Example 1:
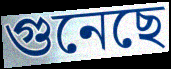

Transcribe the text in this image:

গুনেছে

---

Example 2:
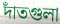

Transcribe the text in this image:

দাঁতগুলা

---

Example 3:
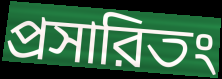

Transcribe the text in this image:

প্রসারিতং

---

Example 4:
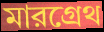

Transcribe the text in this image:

মারগ্রেথ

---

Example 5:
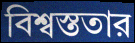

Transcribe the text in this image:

বিশ্বস্ততার